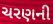
ચરણની